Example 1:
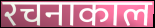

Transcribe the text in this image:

रचनाकाल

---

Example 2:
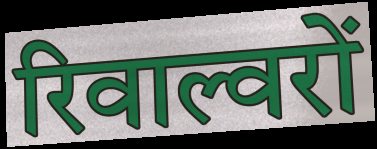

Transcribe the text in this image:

रिवाल्वरों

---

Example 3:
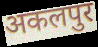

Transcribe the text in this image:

अकलपुर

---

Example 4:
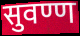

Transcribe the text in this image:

सुवण्ण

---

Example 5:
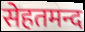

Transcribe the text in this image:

सेहतमन्द